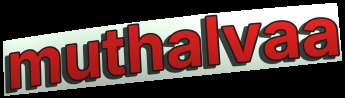
muthalvaa